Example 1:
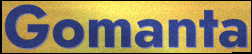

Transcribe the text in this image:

Gomanta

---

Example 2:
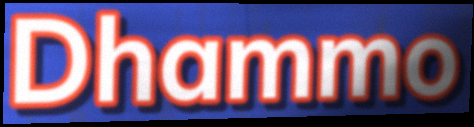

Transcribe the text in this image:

Dhammo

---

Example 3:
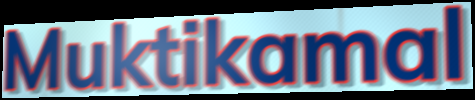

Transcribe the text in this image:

Muktikamal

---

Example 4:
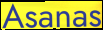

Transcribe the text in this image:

Asanas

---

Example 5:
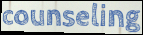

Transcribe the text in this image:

counseling